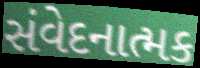
સંવેદનાત્મક